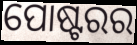
ପୋଷ୍ଟରର